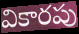
వికారపు